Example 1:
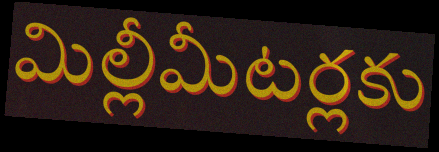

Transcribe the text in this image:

మిల్లీమీటర్లకు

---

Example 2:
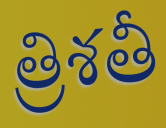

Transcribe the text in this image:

త్రిశతీ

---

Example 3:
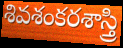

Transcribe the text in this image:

శివశంకరశాస్త్రి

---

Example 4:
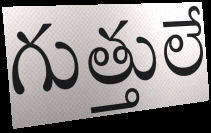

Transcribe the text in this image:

గుత్తులే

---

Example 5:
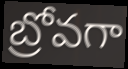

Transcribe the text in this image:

బ్రోవగా